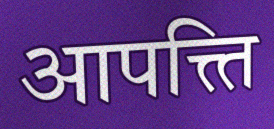
आपत्त्ति